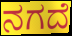
ನಗದೆ